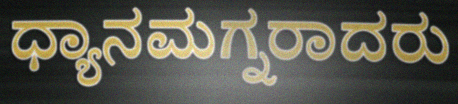
ಧ್ಯಾನಮಗ್ನರಾದರು